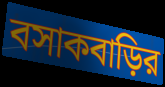
বসাকবাড়ির